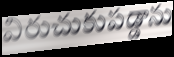
విరుచుకుపడ్డాను